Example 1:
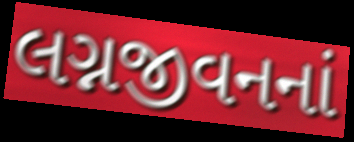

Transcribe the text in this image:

લગ્નજીવનનાં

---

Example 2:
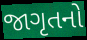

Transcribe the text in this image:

જાગૃતનો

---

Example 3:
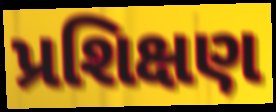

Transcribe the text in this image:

પ્રશિક્ષણ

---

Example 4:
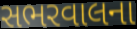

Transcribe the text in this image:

સભરવાલના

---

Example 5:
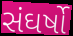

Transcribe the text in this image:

સંઘર્ષો